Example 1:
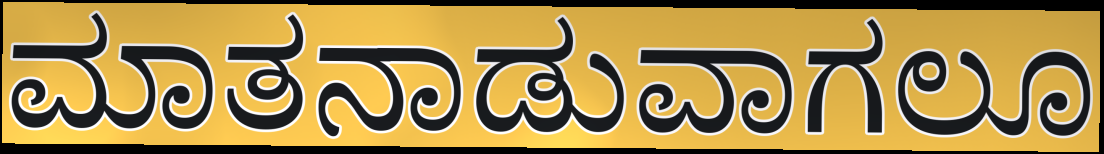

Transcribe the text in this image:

ಮಾತನಾಡುವಾಗಲೂ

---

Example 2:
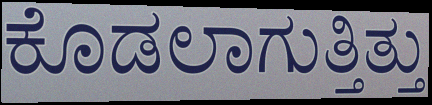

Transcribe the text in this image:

ಕೊಡಲಾಗುತ್ತಿತ್ತು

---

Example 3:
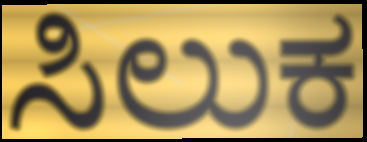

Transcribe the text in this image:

ಸಿಲುಕ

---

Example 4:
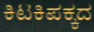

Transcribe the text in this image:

ಕಿಟಕಿಪಕ್ಕದ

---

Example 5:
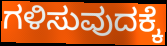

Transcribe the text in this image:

ಗಳಿಸುವುದಕ್ಕೆ